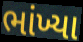
ભાંખ્યા